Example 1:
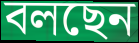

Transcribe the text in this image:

বলছেন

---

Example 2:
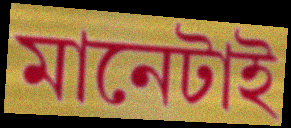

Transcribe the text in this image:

মানেটাই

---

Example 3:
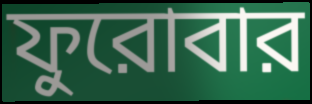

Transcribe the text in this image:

ফুরোবার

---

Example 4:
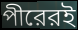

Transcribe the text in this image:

পীরেরই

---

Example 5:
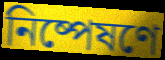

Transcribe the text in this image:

নিষ্পেষণে